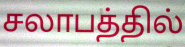
சலாபத்தில்